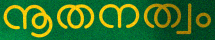
നൂതനത്വം